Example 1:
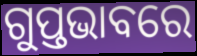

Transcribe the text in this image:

ଗୁପ୍ତଭାବରେ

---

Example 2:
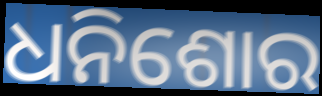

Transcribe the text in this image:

ଧନିଶୋର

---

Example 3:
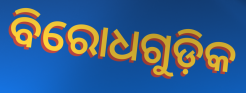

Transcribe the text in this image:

ବିରୋଧଗୁଡ଼ିକ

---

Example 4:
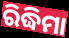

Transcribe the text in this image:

ରିଦ୍ଧିମା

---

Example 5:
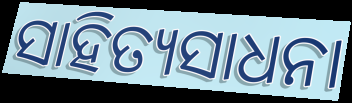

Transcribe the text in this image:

ସାହିତ୍ୟସାଧନା